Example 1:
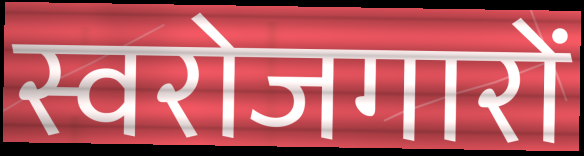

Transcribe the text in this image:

स्वरोजगारों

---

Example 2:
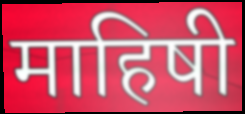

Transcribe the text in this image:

माहिषी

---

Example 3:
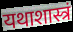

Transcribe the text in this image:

यथाशास्त्रं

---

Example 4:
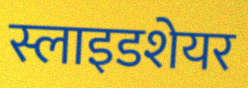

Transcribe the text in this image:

स्लाइडशेयर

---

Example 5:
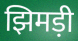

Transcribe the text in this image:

झिमड़ी